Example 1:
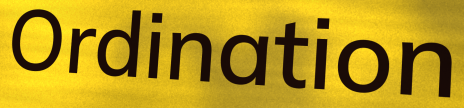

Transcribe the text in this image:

Ordination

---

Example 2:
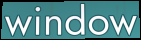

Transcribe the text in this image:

window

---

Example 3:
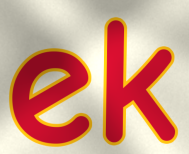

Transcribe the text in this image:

ek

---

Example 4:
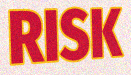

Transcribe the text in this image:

RISK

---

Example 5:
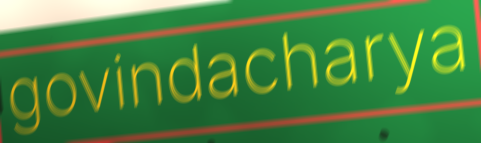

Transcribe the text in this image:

govindacharya